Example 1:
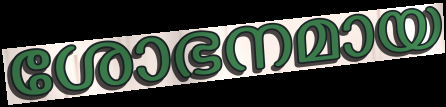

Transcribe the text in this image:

ശോഭനമായ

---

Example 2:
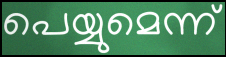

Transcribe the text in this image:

പെയ്യുമെന്ന്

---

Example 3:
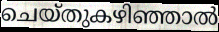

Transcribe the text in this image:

ചെയ്തുകഴിഞ്ഞാൽ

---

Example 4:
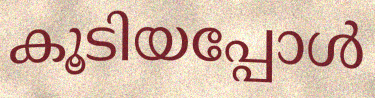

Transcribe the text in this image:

കൂടിയപ്പോൾ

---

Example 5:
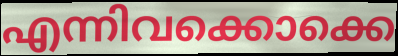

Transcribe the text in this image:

എന്നിവക്കൊക്കെ